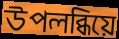
উপলব্ধিয়ে